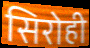
सिरोही